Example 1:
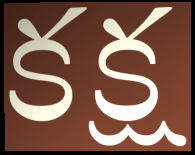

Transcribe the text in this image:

కక్ష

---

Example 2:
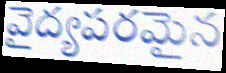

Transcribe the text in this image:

వైద్యపరమైన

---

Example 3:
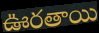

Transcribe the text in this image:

ఊరతాయి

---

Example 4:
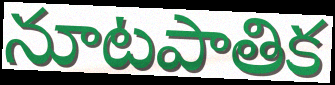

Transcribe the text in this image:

నూటపాతిక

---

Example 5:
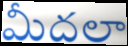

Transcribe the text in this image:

మీదలా